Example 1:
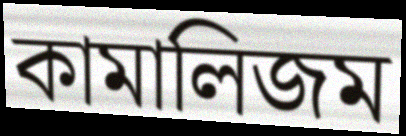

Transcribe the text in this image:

কামালিজম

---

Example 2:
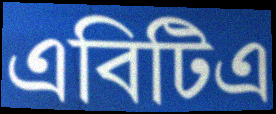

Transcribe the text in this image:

এবিটিএ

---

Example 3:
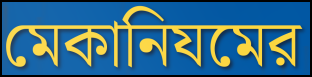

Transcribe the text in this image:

মেকানিযমের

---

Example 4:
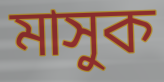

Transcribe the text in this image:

মাসুক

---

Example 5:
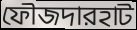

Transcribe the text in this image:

ফৌজদারহাট